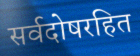
सर्वदोषरहित